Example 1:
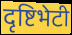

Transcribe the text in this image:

दृष्टिभेटी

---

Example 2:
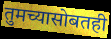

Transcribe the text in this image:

तुमच्यासोबतही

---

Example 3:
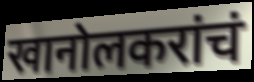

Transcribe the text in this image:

खानोलकरांचं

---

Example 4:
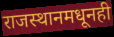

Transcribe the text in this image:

राजस्थानमधूनही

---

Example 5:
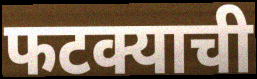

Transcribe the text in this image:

फटक्याची